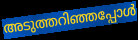
അടുത്തറിഞ്ഞപ്പോൾ